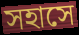
সহাসে